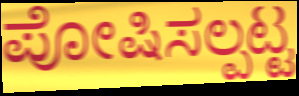
ಪೋಷಿಸಲ್ಪಟ್ಟ